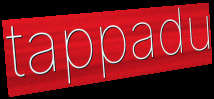
tappadu